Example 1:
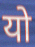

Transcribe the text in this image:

यो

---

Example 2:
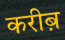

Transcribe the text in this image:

करीब़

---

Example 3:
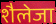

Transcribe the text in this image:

शैलेजा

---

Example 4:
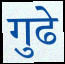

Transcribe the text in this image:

गुढे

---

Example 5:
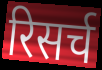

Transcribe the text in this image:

रिसर्च